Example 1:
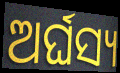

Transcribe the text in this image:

ଅର୍ଘସ୍ୟ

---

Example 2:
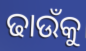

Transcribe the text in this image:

ଢାଉଁକୁ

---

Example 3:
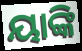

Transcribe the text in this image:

ୟାଙ୍କି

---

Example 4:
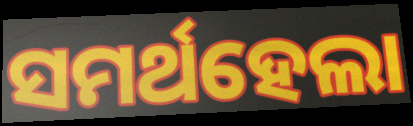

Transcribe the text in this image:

ସମର୍ଥହେଲା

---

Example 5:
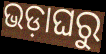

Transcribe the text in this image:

ଭଡ଼ାଘରୁ